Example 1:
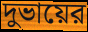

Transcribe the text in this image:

দুভায়ের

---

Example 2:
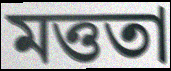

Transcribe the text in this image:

মত্ততা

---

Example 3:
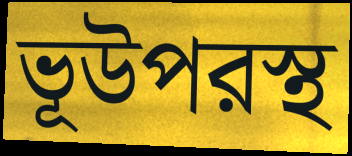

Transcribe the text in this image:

ভূউপরস্থ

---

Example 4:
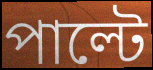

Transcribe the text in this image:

পাল্টে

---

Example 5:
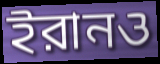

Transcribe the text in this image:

ইরানও